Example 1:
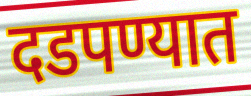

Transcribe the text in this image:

दडपण्यात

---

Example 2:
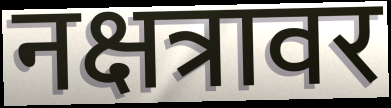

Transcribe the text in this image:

नक्षत्रावर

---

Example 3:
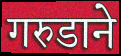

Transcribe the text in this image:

गरुडाने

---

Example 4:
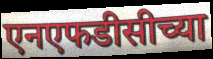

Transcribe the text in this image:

एनएफडीसीच्या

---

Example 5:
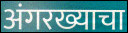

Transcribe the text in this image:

अंगरख्याचा